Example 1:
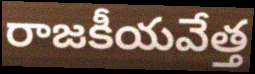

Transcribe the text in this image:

రాజకీయవేత్త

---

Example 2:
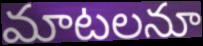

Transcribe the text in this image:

మాటలనూ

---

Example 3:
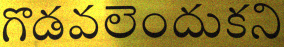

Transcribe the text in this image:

గొడవలెందుకని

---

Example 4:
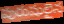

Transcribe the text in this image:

పురుషులైన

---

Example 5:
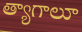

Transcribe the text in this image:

త్యాగాలూ